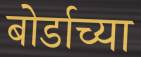
बोर्डाच्या